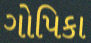
ગોપિકા